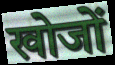
खोजों